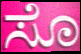
ಸೊ